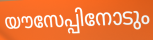
യൗസേപ്പിനോടും